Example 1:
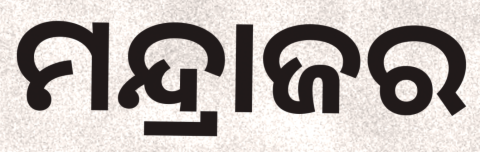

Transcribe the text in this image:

ମନ୍ଦ୍ରାଜର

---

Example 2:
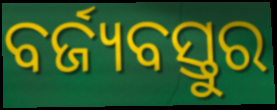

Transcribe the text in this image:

ବର୍ଜ୍ୟବସ୍ତୁର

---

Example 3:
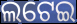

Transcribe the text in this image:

ଲଟେଇ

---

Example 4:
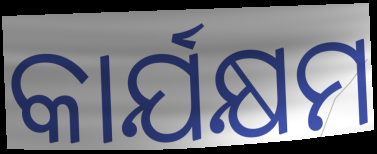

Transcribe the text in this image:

କାର୍ଯକ୍ଷମ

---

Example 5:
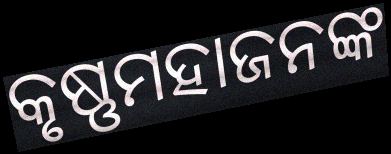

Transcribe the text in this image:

କୃଷ୍ଣମହାଜନଙ୍କ